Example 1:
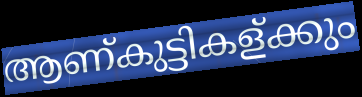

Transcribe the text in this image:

ആണ്കുട്ടികള്ക്കും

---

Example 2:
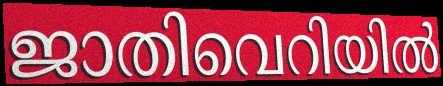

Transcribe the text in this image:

ജാതിവെറിയിൽ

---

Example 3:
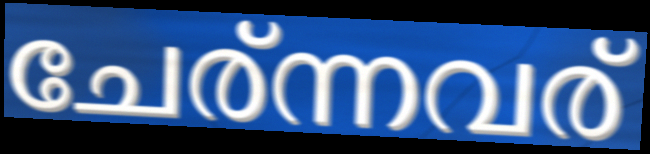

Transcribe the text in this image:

ചേര്ന്നവര്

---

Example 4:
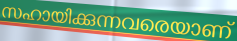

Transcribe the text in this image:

സഹായിക്കുന്നവരെയാണ്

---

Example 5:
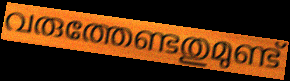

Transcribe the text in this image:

വരുത്തേണ്ടതുമുണ്ട്